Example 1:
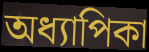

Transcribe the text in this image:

অধ্যাপিকা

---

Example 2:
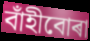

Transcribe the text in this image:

বাঁহীবোৰা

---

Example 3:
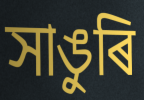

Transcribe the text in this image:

সাঙুৰি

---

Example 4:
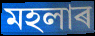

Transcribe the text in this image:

মহলাৰ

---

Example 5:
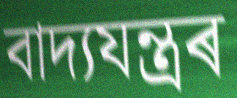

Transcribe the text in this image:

বাদ্যযন্ত্ৰৰ